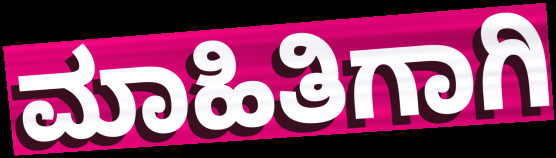
ಮಾಹಿತಿಗಾಗಿ